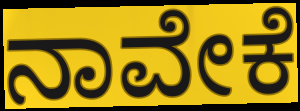
ನಾವೇಕೆ